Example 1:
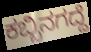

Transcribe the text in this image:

ಕಬ್ಬಿನಗದ್ದೆ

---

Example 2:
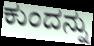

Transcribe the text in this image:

ಕುಂದನ್ನು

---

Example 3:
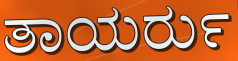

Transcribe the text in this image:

ತಾಯರ್ರು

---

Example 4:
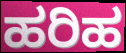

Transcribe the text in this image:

ಹರಿಹ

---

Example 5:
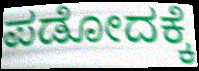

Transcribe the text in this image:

ಪಡೋದಕ್ಕೆ